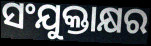
ସଂଯୁକ୍ତାକ୍ଷର